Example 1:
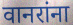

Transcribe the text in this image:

वानरांना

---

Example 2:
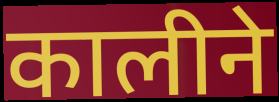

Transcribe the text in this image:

कालीने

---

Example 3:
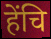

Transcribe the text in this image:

हेंचि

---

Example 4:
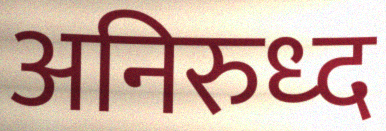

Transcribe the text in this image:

अनिरुध्द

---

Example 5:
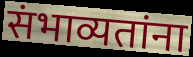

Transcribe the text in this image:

संभाव्यतांना